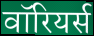
वॉरियर्स